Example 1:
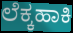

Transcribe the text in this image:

ಲೆಕ್ಕಹಾಕಿ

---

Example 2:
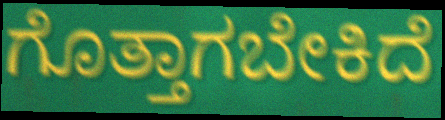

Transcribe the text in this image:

ಗೊತ್ತಾಗಬೇಕಿದೆ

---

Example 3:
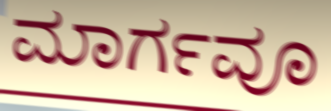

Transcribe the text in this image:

ಮಾರ್ಗವೂ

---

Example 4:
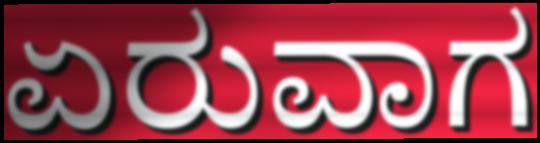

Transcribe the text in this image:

ಏರುವಾಗ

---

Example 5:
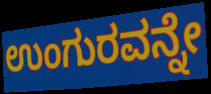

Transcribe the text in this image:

ಉಂಗುರವನ್ನೇ